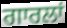
ਗਾਰਲਾਂ